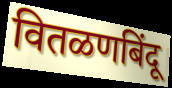
वितळणबिंदू